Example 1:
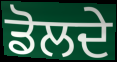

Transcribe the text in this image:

ਡੋਲਦੇ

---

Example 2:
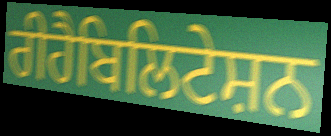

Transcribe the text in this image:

ਰੀਹੈਬਿਲਿਟੇਸ਼ਨ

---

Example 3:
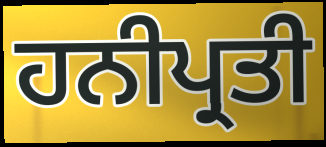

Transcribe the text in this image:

ਹਨੀਪ੍ਰਤੀ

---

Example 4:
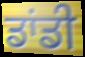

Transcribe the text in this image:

ਡਾਂਡੀ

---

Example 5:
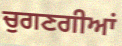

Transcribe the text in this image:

ਚੁਗਣਗੀਆਂ